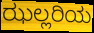
ಝಲ್ಲರಿಯ